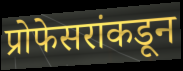
प्रोफेसरांकडून